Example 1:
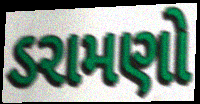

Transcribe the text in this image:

ડરામણો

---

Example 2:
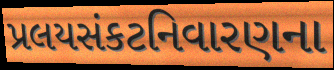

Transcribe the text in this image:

પ્રલયસંકટનિવારણના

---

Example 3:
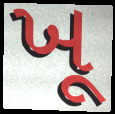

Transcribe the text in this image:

ખૂ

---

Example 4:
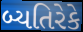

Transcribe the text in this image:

બ્યતિરેકે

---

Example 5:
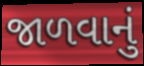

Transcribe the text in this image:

જાળવાનું